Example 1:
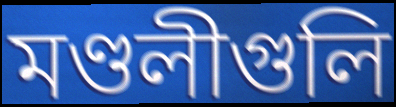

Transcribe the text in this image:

মণ্ডলীগুলি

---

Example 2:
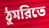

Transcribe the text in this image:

ঠুমরিতে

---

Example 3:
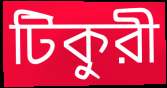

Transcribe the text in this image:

টিকুরী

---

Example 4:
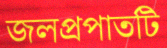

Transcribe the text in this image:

জলপ্রপাতটি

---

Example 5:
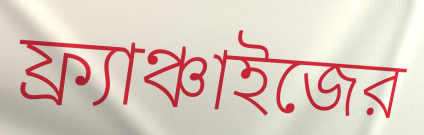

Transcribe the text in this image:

ফ্র্যাঞ্চাইজের